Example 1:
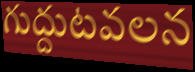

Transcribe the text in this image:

గుద్దుటవలన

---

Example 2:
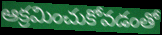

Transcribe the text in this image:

ఆక్రమించుకోవడంతో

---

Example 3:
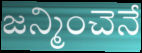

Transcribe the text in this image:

జన్మించెనే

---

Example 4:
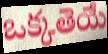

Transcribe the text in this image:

ఒక్కతెయే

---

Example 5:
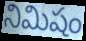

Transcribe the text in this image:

నిమిషం